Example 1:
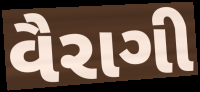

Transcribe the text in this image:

વૈરાગી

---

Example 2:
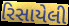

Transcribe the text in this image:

રિસાયેલી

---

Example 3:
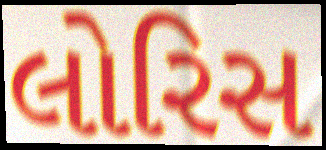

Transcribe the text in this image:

લોરિસ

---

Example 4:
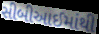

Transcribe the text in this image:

સીબીઆઈમાંથી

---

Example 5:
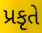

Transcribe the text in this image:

પ્રકૃતે